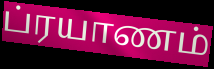
ப்ரயாணம்